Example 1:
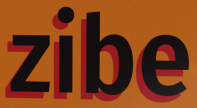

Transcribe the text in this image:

zibe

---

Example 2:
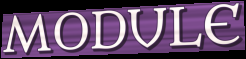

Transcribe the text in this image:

MODULE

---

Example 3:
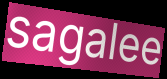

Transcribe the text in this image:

sagalee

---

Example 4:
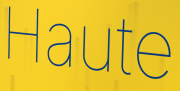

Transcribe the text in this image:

Haute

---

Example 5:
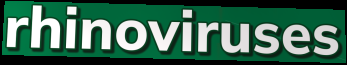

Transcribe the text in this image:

rhinoviruses